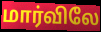
மார்விலே